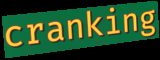
cranking